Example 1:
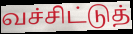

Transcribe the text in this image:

வச்சிட்டுத்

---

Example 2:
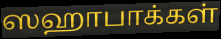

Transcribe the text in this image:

ஸஹாபாக்கள்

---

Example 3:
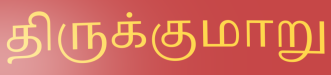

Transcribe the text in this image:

திருக்குமாறு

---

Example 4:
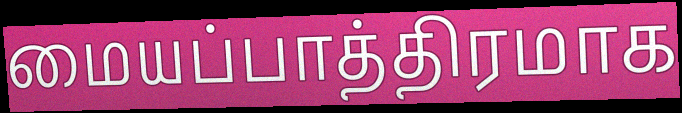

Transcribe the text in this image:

மையப்பாத்திரமாக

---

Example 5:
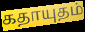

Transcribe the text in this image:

கதாயுதம்